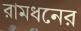
রামধনের